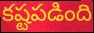
కష్టపడింది